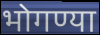
भोगण्या